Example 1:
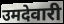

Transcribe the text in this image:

उमदेवारी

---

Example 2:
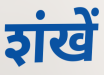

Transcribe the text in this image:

शंखें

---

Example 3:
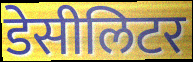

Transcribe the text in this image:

डेसीलिटर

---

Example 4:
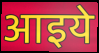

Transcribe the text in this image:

आइये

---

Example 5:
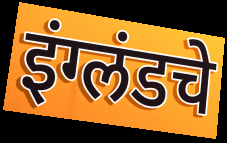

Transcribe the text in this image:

इंग्लंडचे